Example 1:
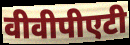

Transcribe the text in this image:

वीवीपीएटी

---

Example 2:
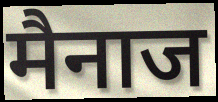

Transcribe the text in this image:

मैनाज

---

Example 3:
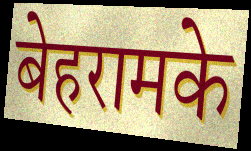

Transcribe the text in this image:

बेहरामके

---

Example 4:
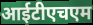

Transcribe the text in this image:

आईटीएचएम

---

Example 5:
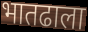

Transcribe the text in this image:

भातढाला